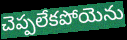
చెప్పలేకపోయెను